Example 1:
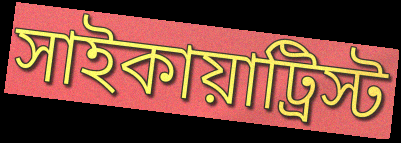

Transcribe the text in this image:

সাইকায়াট্রিস্ট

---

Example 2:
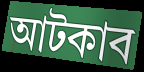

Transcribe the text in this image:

আটকাব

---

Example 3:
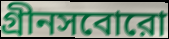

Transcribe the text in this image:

গ্রীনসবোরো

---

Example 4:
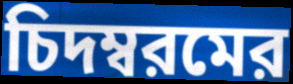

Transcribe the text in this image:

চিদম্বরমের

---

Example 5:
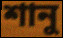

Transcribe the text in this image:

শানু